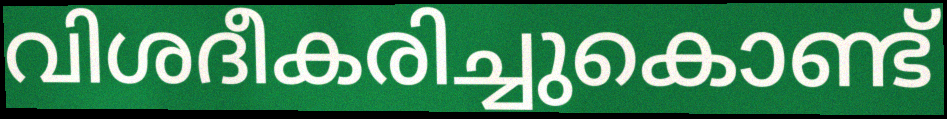
വിശദീകരിച്ചുകൊണ്ട്